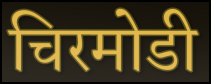
चिरमोडी